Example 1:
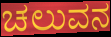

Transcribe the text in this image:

ಚಲುವನ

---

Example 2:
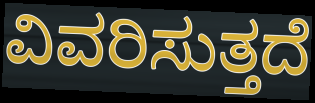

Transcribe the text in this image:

ವಿವರಿಸುತ್ತದೆ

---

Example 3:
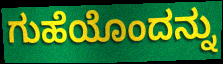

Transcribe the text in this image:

ಗುಹೆಯೊಂದನ್ನು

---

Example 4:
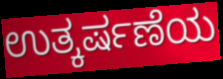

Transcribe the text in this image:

ಉತ್ಕರ್ಷಣೆಯ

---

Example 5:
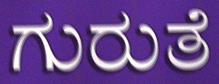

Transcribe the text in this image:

ಗುರುತೆ